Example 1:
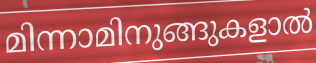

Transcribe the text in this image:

മിന്നാമിനുങ്ങുകളാൽ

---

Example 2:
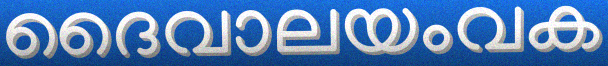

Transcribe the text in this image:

ദൈവാലയംവക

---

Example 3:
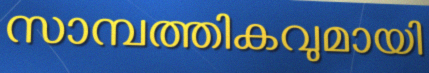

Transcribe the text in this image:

സാമ്പത്തികവുമായി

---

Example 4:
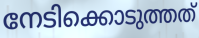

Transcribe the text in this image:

നേടിക്കൊടുത്തത്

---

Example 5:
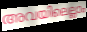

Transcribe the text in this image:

അവയിലെല്ലാം